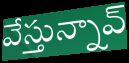
వేస్తున్నావ్